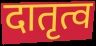
दातृत्व